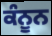
ਕੰਨੂਨ